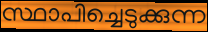
സ്ഥാപിച്ചെടുക്കുന്ന